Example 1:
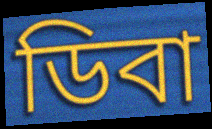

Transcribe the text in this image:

ডিবা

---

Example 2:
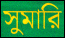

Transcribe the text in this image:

সুমারি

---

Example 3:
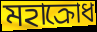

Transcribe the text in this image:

মহাক্রোধ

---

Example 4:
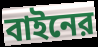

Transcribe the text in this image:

বাইনের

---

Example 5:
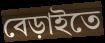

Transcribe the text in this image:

বেড়াইতে